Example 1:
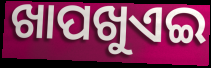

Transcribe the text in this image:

ଖାପଖୁଏଇ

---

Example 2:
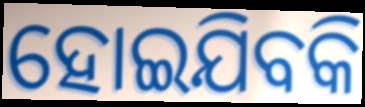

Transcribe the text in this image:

ହୋଇଯିବକି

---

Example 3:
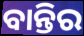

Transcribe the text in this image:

ବାନ୍ତିର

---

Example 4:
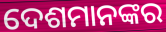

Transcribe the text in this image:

ଦେଶମାନଙ୍କର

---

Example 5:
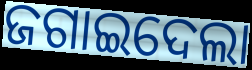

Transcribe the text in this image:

ଜଗାଇଦେଲା